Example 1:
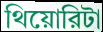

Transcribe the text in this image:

থিয়োরিটা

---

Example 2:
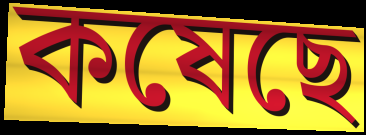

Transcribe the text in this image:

কষেছে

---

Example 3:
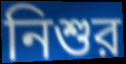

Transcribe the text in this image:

নিশুর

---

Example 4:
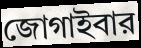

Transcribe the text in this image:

জোগাইবার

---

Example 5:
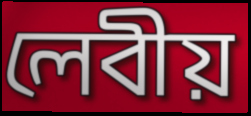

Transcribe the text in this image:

লেবীয়